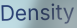
Density